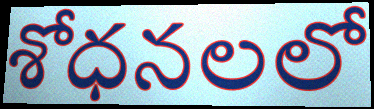
శోధనలలో